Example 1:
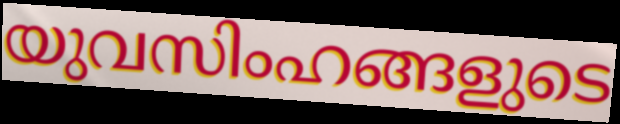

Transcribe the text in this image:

യുവസിംഹങ്ങളുടെ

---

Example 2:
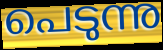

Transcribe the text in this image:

പെടുന്നു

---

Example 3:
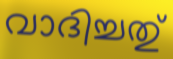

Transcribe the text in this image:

വാദിച്ചതു്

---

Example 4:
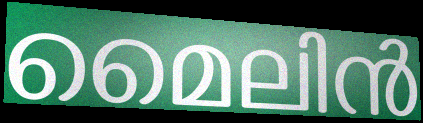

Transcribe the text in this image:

മൈലിൻ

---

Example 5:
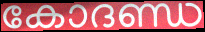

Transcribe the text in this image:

കോദണ്ഡ